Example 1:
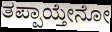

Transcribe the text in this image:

ತಪ್ಪಾಯ್ತೇನೋ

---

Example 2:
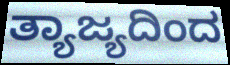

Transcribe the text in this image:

ತ್ಯಾಜ್ಯದಿಂದ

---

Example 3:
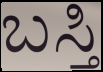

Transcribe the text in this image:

ಬಸ್ತಿ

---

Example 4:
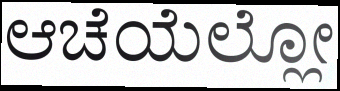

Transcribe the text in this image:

ಆಚೆಯೆಲ್ಲೋ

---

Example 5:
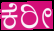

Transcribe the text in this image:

ಕೆರೀ